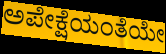
ಅಪೇಕ್ಷೆಯಂತೆಯೇ